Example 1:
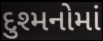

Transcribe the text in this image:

દુશ્મનોમાં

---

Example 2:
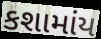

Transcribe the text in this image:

કશામાંય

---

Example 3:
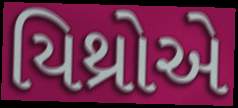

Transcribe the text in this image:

યિથ્રોએ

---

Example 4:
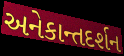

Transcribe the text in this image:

અનેકાન્તદર્શન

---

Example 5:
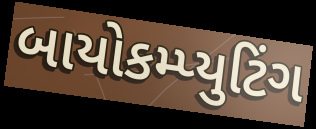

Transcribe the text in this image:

બાયોકમ્પ્યુટિંગ